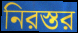
নিরস্তর